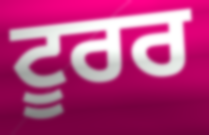
ਟੂਰਰ